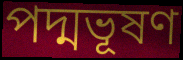
পদ্মভূষণ